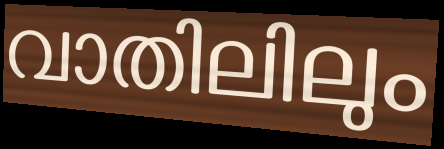
വാതിലിലും